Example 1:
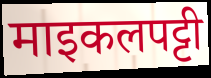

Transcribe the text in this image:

माइकलपट्टी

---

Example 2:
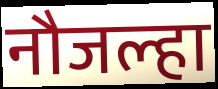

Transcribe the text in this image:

नौजल्हा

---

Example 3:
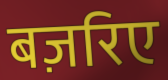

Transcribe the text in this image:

बज़रिए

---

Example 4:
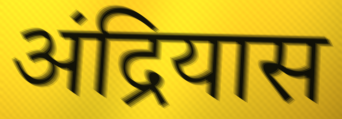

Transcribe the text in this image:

अंद्रियास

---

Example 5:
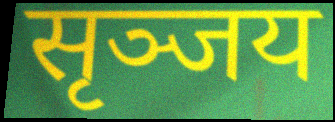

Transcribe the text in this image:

सृञ्जय